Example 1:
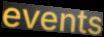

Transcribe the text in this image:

events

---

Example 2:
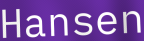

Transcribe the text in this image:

Hansen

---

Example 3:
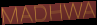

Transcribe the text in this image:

MADHWA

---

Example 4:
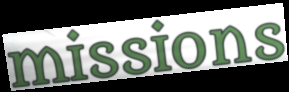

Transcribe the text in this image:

missions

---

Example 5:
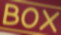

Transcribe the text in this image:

BOX